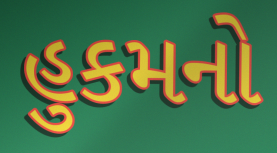
હુકમનો